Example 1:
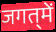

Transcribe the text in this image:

जगत्‌में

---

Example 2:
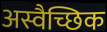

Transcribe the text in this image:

अस्वैच्छिक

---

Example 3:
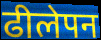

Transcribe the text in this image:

ढीलेपन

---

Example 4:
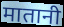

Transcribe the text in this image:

मातानी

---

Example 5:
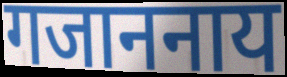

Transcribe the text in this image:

गजाननाय